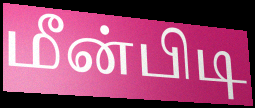
மீன்பிடி